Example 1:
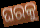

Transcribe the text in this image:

ଘରକୁ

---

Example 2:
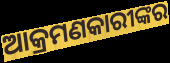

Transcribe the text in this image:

ଆକ୍ରମଣକାରୀଙ୍କର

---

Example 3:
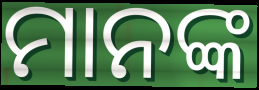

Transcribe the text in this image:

ମାନଙ୍କ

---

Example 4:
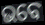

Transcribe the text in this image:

ଭବେ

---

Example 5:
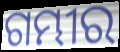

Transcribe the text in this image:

ଗମ୍ଭୀର